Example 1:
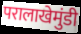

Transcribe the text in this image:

परालाखेमुंडी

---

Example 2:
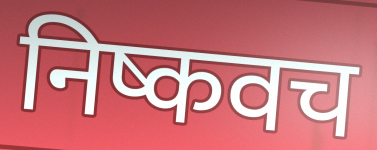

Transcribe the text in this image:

निष्कवच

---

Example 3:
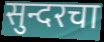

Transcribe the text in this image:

सुन्दरचा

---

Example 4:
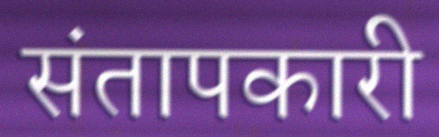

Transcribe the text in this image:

संतापकारी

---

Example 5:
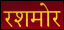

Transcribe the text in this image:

रशमोर